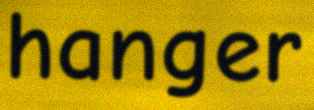
hanger